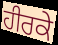
ਹੀਰਕੇ